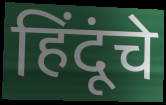
हिंदूंचे